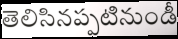
తెలిసినప్పటినుండీ